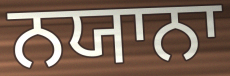
ਨਯਾਨਾ